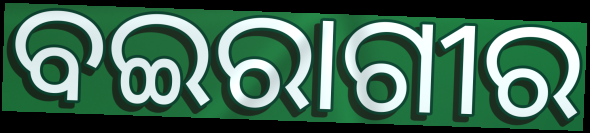
ବଇରାଗୀର